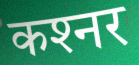
कश्‍नर